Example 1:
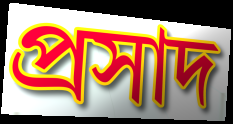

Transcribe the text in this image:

প্রসাদ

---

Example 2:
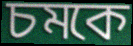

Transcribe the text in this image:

চমকে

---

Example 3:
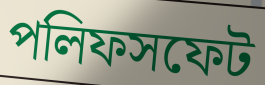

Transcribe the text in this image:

পলিফসফেট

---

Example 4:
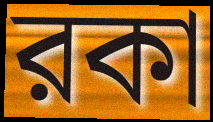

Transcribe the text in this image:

রকা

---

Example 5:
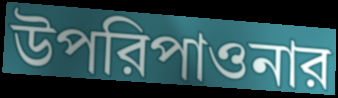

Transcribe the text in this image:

উপরিপাওনার